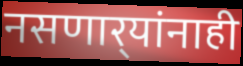
नसणार्‍यांनाही